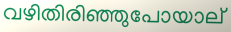
വഴിതിരിഞ്ഞുപോയാല്